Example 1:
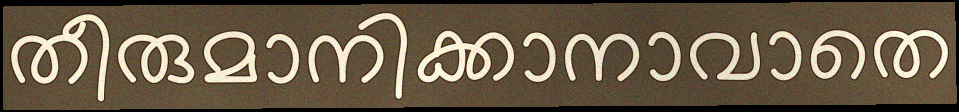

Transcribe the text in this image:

തീരുമാനിക്കാനാവാതെ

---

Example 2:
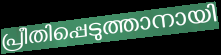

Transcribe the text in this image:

പ്രീതിപ്പെടുത്താനായി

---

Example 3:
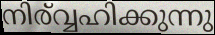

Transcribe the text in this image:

നിര്വ്വഹിക്കുന്നു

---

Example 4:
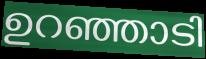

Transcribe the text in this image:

ഉറഞ്ഞാടി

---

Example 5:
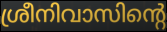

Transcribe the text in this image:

ശ്രീനിവാസിന്റെ